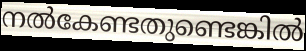
നൽകേണ്ടതുണ്ടെങ്കിൽ